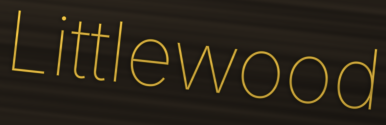
Littlewood